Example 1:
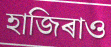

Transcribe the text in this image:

হাজিৰাও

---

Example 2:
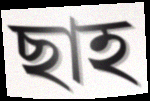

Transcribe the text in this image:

ছাহ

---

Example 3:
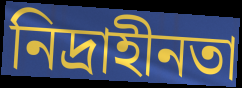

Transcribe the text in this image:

নিদ্ৰাহীনতা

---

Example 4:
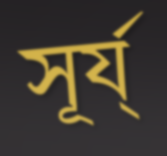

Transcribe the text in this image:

সূৰ্য্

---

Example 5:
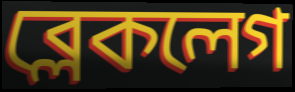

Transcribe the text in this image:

ব্লেকলেগ